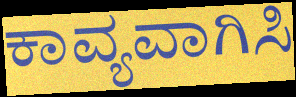
ಕಾವ್ಯವಾಗಿಸಿ